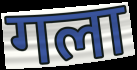
गला